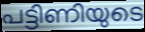
പട്ടിണിയുടെ